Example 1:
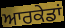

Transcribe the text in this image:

ਆਰਕੇਡਾਂ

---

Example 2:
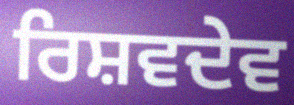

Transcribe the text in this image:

ਰਿਸ਼ਵਦੇਵ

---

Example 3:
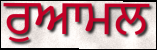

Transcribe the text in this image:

ਰੁਆਮਲ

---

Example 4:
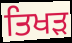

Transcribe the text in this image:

ਤਿਖੜ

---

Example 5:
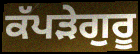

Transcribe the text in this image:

ਕੱਪੜੇਗੁਰੂ